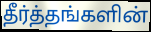
தீர்த்தங்களின்